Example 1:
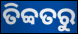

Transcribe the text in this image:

ତିବ୍ବତରୁ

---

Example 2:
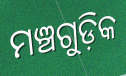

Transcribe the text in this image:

ମଞ୍ଚଗୁଡ଼ିକ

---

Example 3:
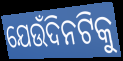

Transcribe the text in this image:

ଯେଉଁଦିନଟିକୁ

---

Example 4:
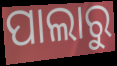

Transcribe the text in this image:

ପାଲାରୁ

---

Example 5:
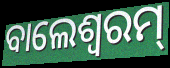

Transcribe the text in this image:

ବାଲେଶ୍ବରମ୍